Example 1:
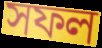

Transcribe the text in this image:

সফল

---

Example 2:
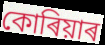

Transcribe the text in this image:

কোৰিয়াৰ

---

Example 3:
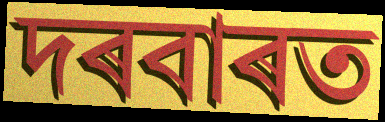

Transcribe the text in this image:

দৰবাৰত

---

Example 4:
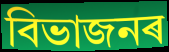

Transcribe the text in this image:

বিভাজনৰ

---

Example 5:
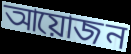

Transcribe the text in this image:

আয়োজন